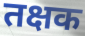
तक्षक